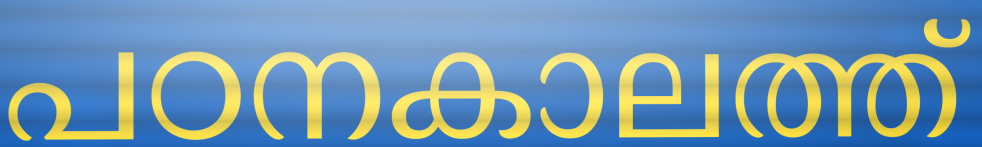
പഠനകാലത്ത്